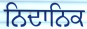
ਨਿਦਾਨਿਕ